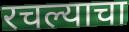
रचल्याचा